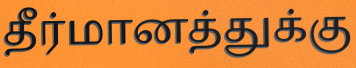
தீர்மானத்துக்கு